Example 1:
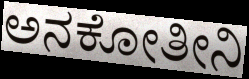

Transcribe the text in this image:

ಅನಕೋತೀನಿ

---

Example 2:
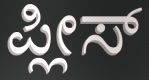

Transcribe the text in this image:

ಪ್ಲೀಸ್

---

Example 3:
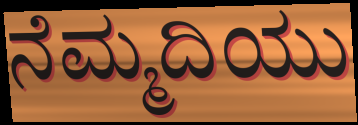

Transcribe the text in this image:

ನೆಮ್ಮದಿಯು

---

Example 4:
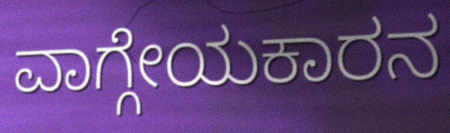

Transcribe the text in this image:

ವಾಗ್ಗೇಯಕಾರನ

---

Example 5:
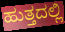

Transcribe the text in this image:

ಹುತ್ತದಲ್ಲಿ